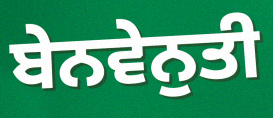
ਬੇਨਵੇਨੁਤੀ